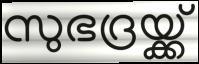
സുഭദ്രയ്ക്ക്